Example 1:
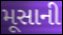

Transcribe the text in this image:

મૂસાની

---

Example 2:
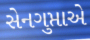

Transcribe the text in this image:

સેનગુપ્તાએ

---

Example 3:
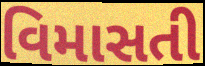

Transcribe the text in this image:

વિમાસતી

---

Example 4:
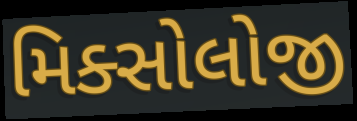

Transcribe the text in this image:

મિક્સોલોજી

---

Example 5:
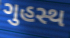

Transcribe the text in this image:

ગુહસ્થ